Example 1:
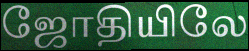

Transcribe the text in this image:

ஜோதியிலே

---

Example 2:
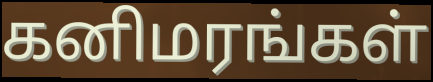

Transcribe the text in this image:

கனிமரங்கள்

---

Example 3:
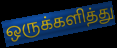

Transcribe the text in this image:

ஒருக்களித்து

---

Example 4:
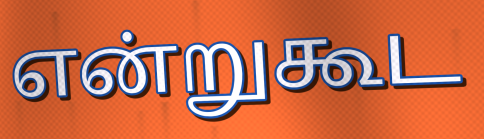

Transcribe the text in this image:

என்றுகூட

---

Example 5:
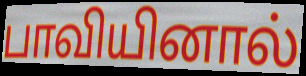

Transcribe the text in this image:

பாவியினால்